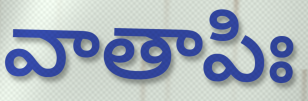
వాతాపిః